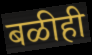
बळीही